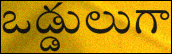
ఒడ్డులుగా